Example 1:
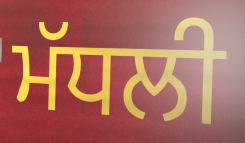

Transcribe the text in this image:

ਮੱਧਲੀ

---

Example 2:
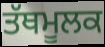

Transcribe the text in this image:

ਤੱਥਮੂਲਕ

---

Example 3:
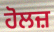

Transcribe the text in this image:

ਹੋਲਜ਼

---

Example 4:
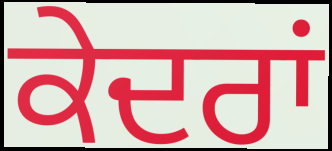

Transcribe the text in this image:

ਕੇਦਰਾਂ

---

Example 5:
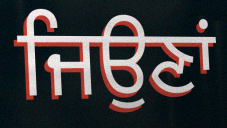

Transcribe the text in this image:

ਜਿਉਣਾਂ